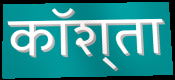
कॉश्ता